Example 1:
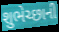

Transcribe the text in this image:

શુભેચ્છાની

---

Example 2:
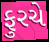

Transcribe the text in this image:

ફુરચે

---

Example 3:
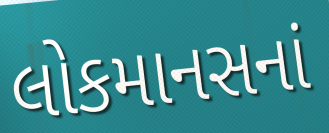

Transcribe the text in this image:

લોકમાનસનાં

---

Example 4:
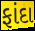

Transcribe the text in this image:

ફાંદા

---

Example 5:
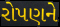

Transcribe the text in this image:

રોપણને